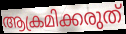
ആക്രമിക്കരുത്